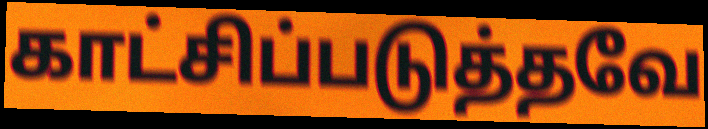
காட்சிப்படுத்தவே